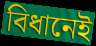
বিধানেই